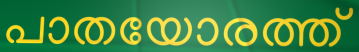
പാതയോരത്ത്